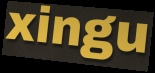
xingu